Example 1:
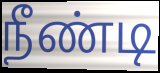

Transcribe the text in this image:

நீண்டி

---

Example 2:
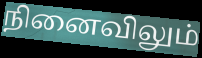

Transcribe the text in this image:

நினைவிலும்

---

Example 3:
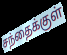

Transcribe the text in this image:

சந்தைக்குள்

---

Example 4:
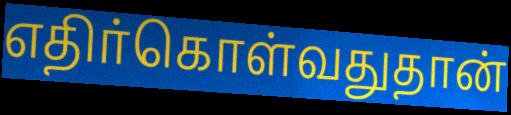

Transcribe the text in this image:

எதிர்கொள்வதுதான்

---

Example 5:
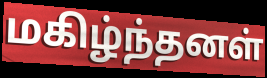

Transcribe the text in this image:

மகிழ்ந்தனள்